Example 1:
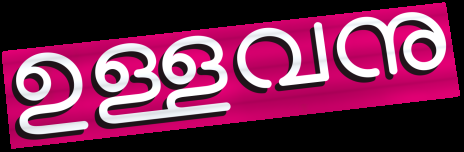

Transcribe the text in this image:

ഉള്ളവനു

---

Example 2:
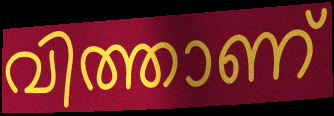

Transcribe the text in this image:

വിത്താണ്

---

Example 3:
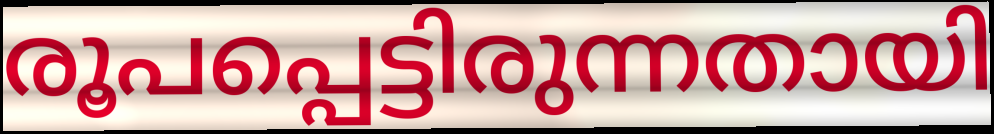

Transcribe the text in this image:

രൂപപ്പെട്ടിരുന്നതായി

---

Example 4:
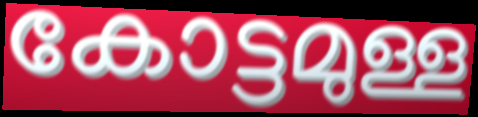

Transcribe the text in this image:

കോട്ടമുള്ള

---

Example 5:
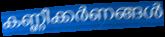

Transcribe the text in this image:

കണ്ണീക്കർണങ്ങൾ